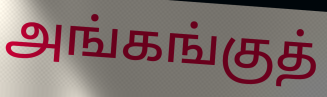
அங்கங்குத்